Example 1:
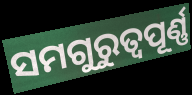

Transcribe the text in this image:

ସମଗୁରୁତ୍ଵପୂର୍ଣ୍ଣ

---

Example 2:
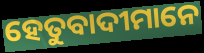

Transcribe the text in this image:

ହେତୁବାଦୀମାନେ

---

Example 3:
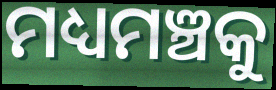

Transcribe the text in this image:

ମଧ୍ୟମଞ୍ଚକୁ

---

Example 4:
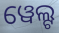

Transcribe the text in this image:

ୱେଲ୍ଟ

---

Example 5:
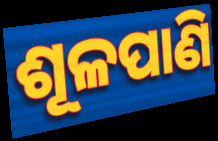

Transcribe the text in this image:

ଶୂଳପାଣି